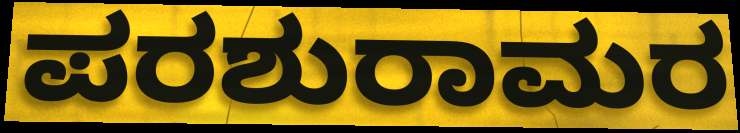
ಪರಶುರಾಮರ